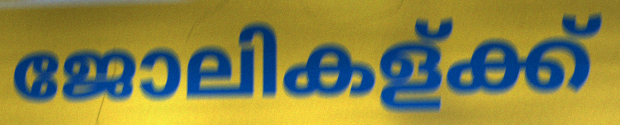
ജോലികള്ക്ക്